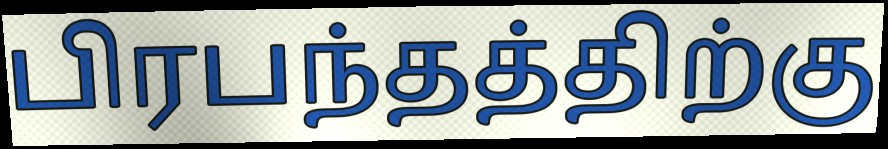
பிரபந்தத்திற்கு